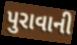
પુરાવાની